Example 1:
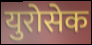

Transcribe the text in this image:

युरोसेक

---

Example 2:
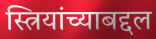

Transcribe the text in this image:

स्त्रियांच्याबद्दल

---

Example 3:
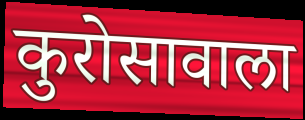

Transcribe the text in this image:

कुरोसावाला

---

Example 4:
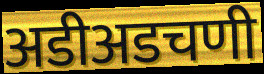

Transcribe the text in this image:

अडीअडचणी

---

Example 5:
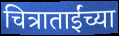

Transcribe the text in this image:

चित्राताईंच्या